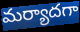
మర్యాదగా